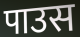
पाउस